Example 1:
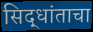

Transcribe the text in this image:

सिद्धांताचा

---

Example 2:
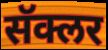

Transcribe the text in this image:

सॅक्लर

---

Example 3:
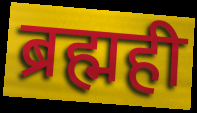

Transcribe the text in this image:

ब्रह्मही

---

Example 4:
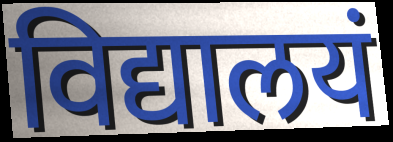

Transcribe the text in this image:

विद्यालयं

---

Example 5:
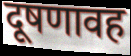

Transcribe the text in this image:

दूषणावह